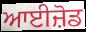
ਆਈਜ਼ੋਡ